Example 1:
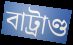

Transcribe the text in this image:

বাট্রাণ্ড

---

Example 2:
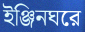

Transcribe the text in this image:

ইঞ্জিনঘরে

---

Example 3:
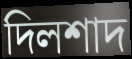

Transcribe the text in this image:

দিলশাদ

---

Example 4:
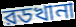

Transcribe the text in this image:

রডখানা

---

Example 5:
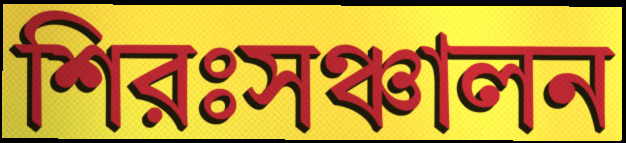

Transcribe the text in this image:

শিরঃসঞ্চালন